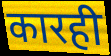
कारही